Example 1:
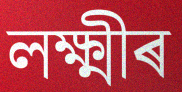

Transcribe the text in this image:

লক্ষ্মীৰ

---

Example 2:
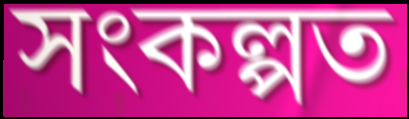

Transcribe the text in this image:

সংকল্পত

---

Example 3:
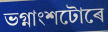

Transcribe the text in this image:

ভগ্নাংশটোৰে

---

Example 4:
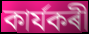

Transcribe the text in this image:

কাৰ্যকৰী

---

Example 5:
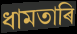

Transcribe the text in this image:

ধামতাৰি